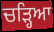
ਚੜ੍ਹਿਆ